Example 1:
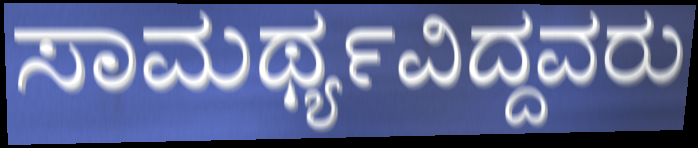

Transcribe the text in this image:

ಸಾಮರ್ಥ್ಯವಿದ್ದವರು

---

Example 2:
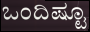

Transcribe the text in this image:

ಒಂದಿಷ್ಟೂ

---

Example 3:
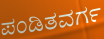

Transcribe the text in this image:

ಪಂಡಿತವರ್ಗ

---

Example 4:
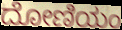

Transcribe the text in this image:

ದೋಣಿಯಂ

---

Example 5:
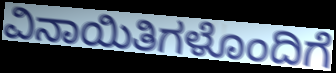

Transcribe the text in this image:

ವಿನಾಯಿತಿಗಳೊಂದಿಗೆ